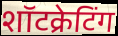
शॉटक्रेटिंग